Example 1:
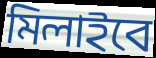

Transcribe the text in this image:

মিলাইবে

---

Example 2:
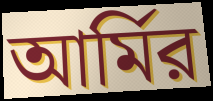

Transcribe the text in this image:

আর্মির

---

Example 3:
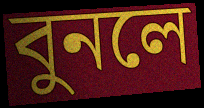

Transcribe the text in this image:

বুনলে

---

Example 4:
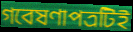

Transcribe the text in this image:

গবেষণাপত্রটিই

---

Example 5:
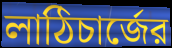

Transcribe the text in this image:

লাঠিচার্জের